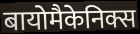
बायोमैकेनिक्स